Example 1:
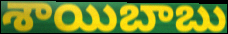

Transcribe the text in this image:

శాయిబాబు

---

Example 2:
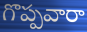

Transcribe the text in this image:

గొప్పవారా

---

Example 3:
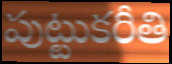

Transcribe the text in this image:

పుట్టుకరీతి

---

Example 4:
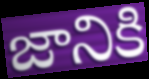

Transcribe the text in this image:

జానికి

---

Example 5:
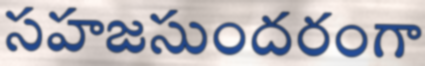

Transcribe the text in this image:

సహజసుందరంగా